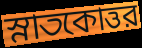
স্নাতকোত্তর